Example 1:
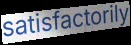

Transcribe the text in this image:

satisfactorily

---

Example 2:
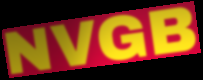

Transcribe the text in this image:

NVGB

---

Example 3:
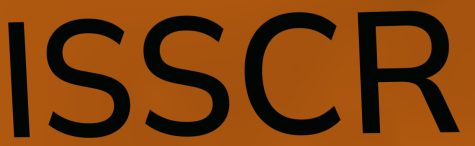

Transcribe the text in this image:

ISSCR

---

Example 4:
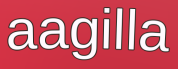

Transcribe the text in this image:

aagilla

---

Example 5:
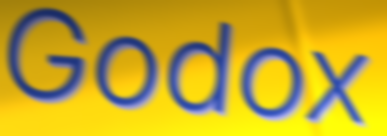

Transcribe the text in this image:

Godox